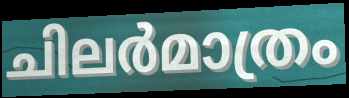
ചിലർമാത്രം